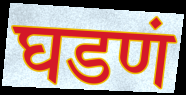
घडणं